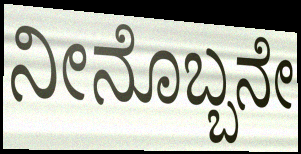
ನೀನೊಬ್ಬನೇ